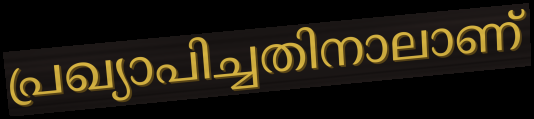
പ്രഖ്യാപിച്ചതിനാലാണ്